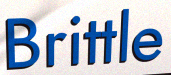
Brittle